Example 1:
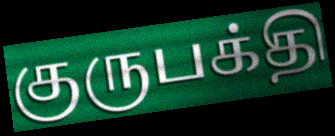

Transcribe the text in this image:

குருபக்தி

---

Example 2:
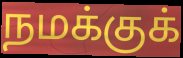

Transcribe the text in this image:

நமக்குக்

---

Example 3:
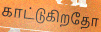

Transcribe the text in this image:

காட்டுகிறதோ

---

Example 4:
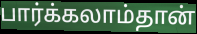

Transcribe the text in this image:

பார்க்கலாம்தான்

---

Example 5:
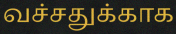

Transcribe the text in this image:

வச்சதுக்காக